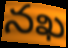
నఖ